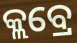
କ୍ଲବ୍ରେ